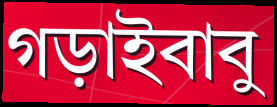
গড়াইবাবু